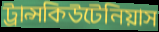
ট্রান্সকিউটেনিয়াস